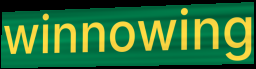
winnowing